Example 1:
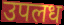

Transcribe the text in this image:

उपलध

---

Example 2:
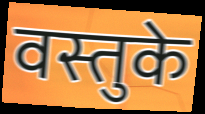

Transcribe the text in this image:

वस्तुके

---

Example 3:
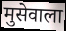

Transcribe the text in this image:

मुसेवाला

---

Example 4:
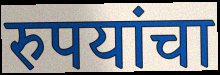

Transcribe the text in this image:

रुपयांचा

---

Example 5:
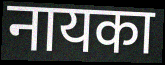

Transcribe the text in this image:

नायका